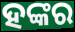
ହଙ୍କର